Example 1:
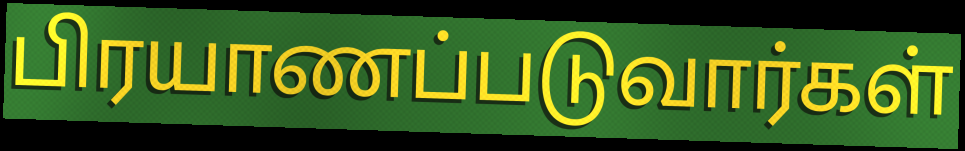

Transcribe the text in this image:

பிரயாணப்படுவார்கள்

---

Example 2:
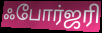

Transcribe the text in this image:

ஃபோர்ஜரி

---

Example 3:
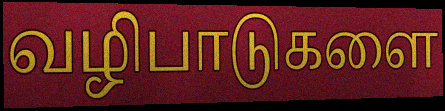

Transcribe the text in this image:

வழிபாடுகளை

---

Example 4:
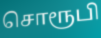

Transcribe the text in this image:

சொரூபி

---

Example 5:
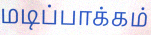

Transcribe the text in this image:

மடிப்பாக்கம்